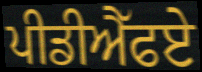
ਪੀਡੀਐੱਫਏ